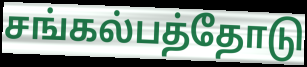
சங்கல்பத்தோடு